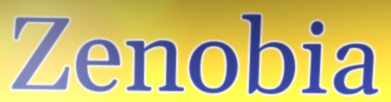
Zenobia